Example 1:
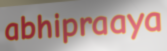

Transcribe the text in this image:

abhipraaya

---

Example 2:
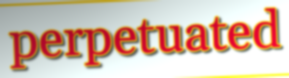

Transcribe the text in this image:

perpetuated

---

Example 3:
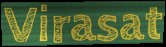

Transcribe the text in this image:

Virasat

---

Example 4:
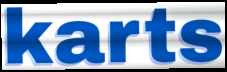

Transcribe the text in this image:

karts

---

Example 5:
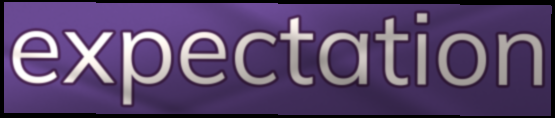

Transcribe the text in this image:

expectation